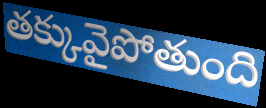
తక్కువైపోతుంది